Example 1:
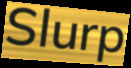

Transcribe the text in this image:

Slurp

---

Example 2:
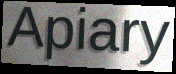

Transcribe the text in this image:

Apiary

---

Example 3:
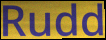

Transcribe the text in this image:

Rudd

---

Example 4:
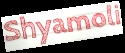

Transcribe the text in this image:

Shyamoli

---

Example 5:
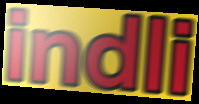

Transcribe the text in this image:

indli